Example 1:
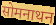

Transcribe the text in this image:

सोमनाथन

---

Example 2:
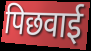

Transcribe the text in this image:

पिछवाई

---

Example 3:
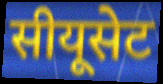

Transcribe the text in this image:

सीयूसेट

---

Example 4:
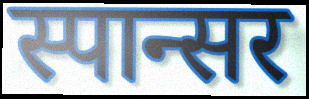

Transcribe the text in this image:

स्पान्सर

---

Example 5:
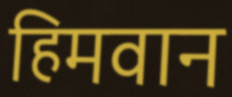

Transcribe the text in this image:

हिमवान